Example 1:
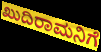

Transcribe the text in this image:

ಖುದಿರಾಮನಿಗೆ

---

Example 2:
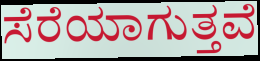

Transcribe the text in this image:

ಸೆರೆಯಾಗುತ್ತವೆ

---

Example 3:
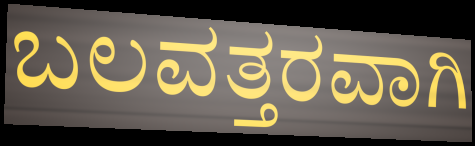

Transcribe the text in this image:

ಬಲವತ್ತರವಾಗಿ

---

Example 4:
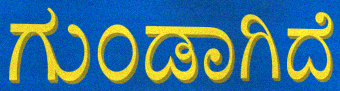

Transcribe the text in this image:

ಗುಂಡಾಗಿದೆ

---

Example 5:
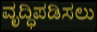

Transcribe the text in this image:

ವೃದ್ಧಿಪಡಿಸಲು